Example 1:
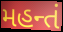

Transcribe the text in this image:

મહન્તં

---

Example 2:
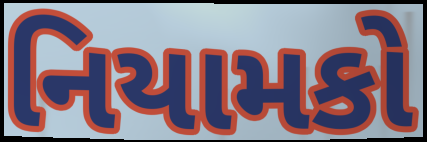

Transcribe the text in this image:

નિયામકો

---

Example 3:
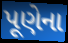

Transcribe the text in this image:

પૂણેના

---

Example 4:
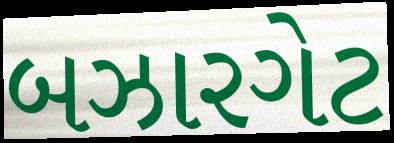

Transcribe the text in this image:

બઝારગેટ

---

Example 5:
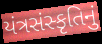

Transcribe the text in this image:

યંત્રસંસ્કૃતિનું